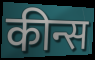
कीन्स